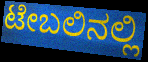
ಟೇಬಲಿನಲ್ಲಿ